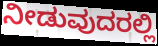
ನೀಡುವುದರಲ್ಲಿ